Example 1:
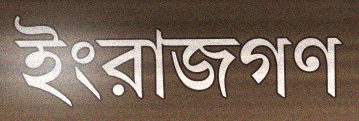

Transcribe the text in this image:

ইংরাজগণ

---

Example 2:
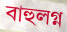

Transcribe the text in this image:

বাহুলগ্ন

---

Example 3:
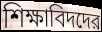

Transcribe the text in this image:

শিক্ষাবিদদের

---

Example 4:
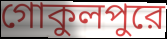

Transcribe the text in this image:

গোকুলপুরে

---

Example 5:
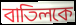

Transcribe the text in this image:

বাতিলকে